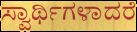
ಸ್ವಾರ್ಥಿಗಳಾದರೆ